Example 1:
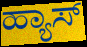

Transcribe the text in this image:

ಹ್ಯಾಸ್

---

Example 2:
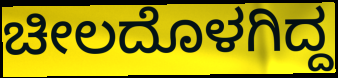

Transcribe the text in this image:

ಚೀಲದೊಳಗಿದ್ದ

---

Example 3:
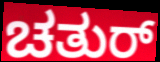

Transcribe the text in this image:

ಚತುರ್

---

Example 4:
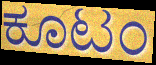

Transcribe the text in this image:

ಕೂಟಂ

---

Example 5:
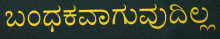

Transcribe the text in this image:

ಬಂಧಕವಾಗುವುದಿಲ್ಲ